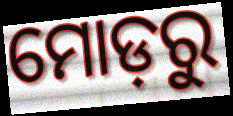
ମୋଡ଼ରୁ